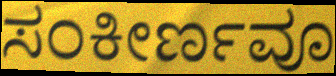
ಸಂಕೀರ್ಣವೂ